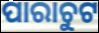
ପାରାଚୁଟ